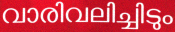
വാരിവലിച്ചിടും